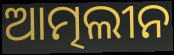
ଆତ୍ମଲୀନ